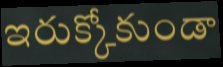
ఇరుక్కోకుండా